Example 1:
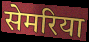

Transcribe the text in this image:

सेमरिया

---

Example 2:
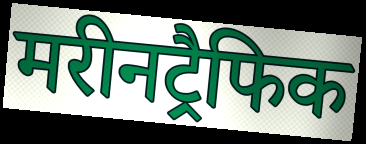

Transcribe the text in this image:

मरीनट्रैफिक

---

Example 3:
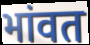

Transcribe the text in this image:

भांवत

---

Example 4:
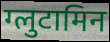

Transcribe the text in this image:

ग्लुटामिन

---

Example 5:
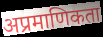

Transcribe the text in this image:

अप्रमाणिकता